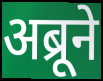
अब्रूने